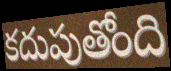
కదుపుతోంది